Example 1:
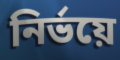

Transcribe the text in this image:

নির্ভয়ে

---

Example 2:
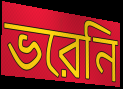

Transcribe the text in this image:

ভরেনি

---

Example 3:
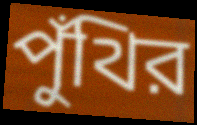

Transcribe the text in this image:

পুঁথির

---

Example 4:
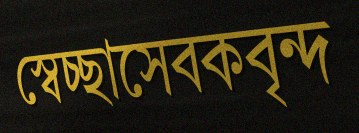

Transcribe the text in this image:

স্বেচ্ছাসেবকবৃন্দ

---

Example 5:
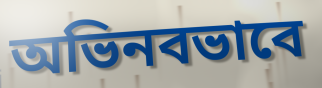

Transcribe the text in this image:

অভিনবভাবে